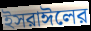
ইসরাঈলের